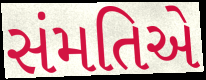
સંમતિએ